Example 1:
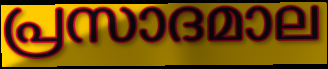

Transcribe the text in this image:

പ്രസാദമാല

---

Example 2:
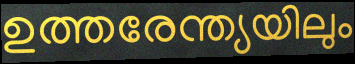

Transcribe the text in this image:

ഉത്തരേന്ത്യയിലും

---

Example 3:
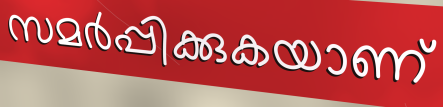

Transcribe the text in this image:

സമർപ്പിക്കുകയാണ്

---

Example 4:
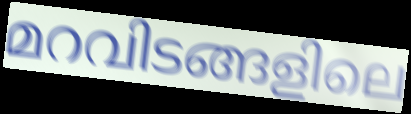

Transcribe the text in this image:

മറവിടങ്ങളിലെ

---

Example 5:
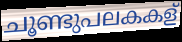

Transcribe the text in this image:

ചൂണ്ടുപലകകള്